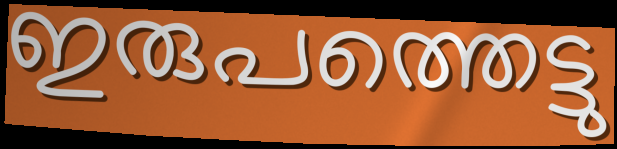
ഇരുപത്തെട്ടു